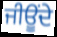
ਜੀਊਂਦੇ